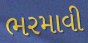
ભરમાવી